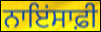
ਨਾਇਂਸਾਫ਼ੀ